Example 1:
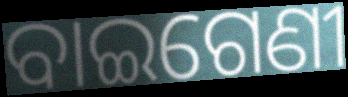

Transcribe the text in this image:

ବାଇଗେଣୀ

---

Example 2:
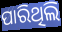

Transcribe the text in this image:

ପାରିଥିଲି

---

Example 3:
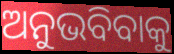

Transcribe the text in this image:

ଅନୁଭବିବାକୁ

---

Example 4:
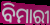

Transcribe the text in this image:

ବିମାରୀ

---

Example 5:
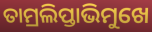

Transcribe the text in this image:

ତାମ୍ରଲିପ୍ତାଭିମୁଖେ